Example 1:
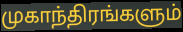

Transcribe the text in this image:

முகாந்திரங்களும்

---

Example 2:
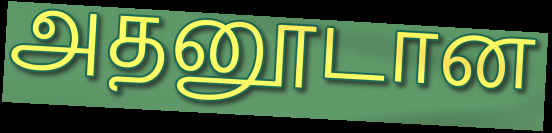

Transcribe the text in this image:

அதனூடான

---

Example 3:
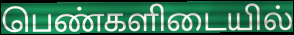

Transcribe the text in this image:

பெண்களிடையில்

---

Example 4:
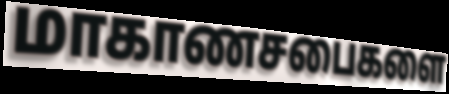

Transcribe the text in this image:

மாகாணசபைகளை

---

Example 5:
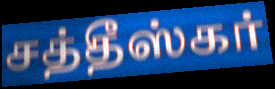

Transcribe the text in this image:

சத்தீஸ்கர்